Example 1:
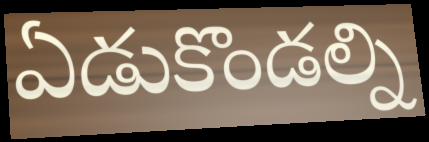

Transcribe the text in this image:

ఏడుకొండల్ని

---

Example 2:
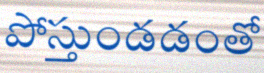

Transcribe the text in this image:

పోస్తుండడంతో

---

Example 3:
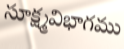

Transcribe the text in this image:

సూక్ష్మవిభాగము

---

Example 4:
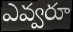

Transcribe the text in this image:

ఎవ్వరూ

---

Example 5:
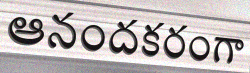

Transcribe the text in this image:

ఆనందకరంగా